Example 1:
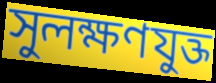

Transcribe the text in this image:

সুলক্ষণযুক্ত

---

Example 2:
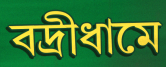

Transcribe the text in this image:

বদ্রীধামে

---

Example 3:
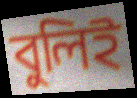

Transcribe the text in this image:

বুলিই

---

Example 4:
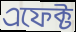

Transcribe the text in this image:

এফেক্ট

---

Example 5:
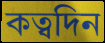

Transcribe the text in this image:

কত্বদিন